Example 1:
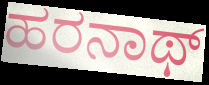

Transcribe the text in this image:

ಹರನಾಥ್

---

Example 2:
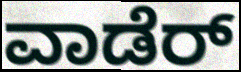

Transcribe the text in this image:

ವಾಡೆರ್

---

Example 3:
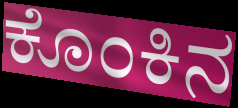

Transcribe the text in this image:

ಕೊಂಕಿನ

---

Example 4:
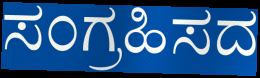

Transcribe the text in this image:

ಸಂಗ್ರಹಿಸದ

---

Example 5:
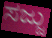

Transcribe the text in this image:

ಸಜ್ಜು